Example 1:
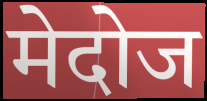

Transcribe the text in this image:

मेदोज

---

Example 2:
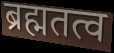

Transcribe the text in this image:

ब्रह्मतत्व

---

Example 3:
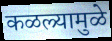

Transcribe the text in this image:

कळल्यामुळे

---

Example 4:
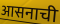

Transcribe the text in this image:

आसनाची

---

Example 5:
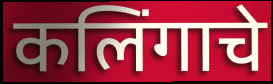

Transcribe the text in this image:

कलिंगाचे